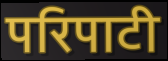
परिपाटी